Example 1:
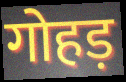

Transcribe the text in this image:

गोहड़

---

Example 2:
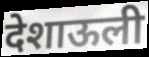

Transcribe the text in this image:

देशाऊली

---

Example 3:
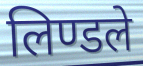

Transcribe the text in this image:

लिण्डले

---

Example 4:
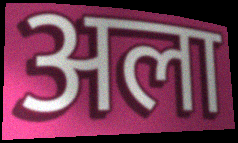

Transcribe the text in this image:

अला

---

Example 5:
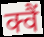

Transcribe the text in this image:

क्वैं